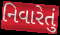
નિવારેતું